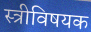
स्त्रीविषयक